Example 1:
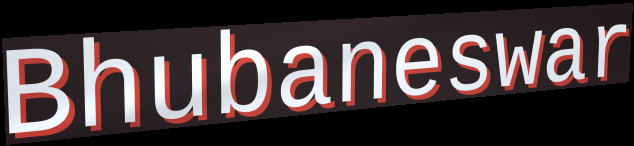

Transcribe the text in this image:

Bhubaneswar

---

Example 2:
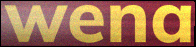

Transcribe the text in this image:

wena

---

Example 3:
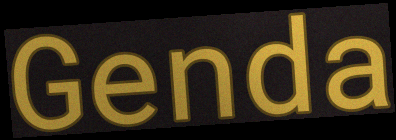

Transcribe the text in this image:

Genda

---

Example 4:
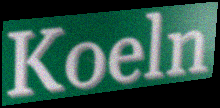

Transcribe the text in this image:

Koeln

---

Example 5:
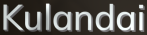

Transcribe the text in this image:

Kulandai